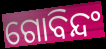
ଗୋବିନ୍ଦଂ